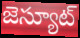
జెస్యూట్